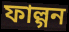
ফাল্গন